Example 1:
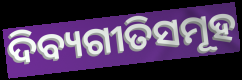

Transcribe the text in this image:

ଦିବ୍ୟଗୀତିସମୂହ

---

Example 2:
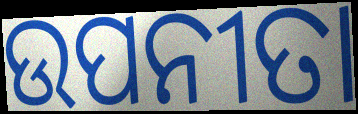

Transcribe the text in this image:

ଉପନୀତା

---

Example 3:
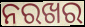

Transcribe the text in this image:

ନରଖର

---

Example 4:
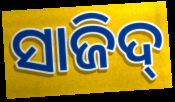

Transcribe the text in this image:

ସାଜିଦ୍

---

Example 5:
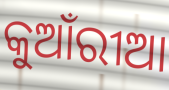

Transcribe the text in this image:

କୁଆଁରୀଆ